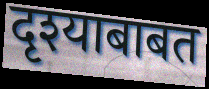
दृश्याबाबत